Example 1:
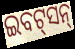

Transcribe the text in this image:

ଇବଟ୍‌ସନ୍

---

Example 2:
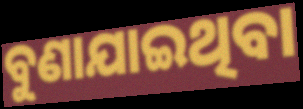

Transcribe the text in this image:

ବୁଣାଯାଇଥିବା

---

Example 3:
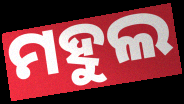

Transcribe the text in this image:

ମହୁଲ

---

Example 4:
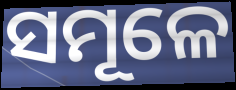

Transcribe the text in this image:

ସମୂଳେ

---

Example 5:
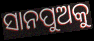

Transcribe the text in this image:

ସାନପୁଅକୁ